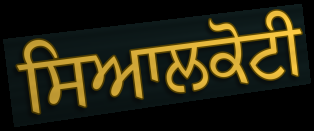
ਸਿਆਲਕੋਟੀ